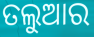
ତଲୁଆର